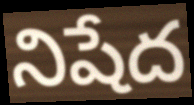
నిషేద